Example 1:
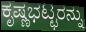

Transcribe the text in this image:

ಕೃಷ್ಣಭಟ್ಟರನ್ನು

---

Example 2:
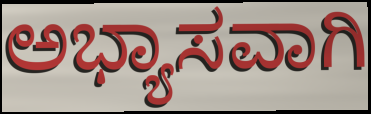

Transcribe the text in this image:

ಅಭ್ಯಾಸವಾಗಿ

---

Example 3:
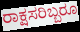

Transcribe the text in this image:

ರಾಕ್ಷಸರಿಬ್ಬರೂ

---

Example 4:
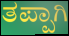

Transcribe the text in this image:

ತಪ್ಪಾಗಿ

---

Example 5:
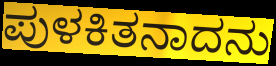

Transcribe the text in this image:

ಪುಳಕಿತನಾದನು